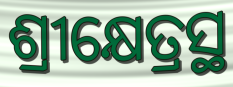
ଶ୍ରୀକ୍ଷେତ୍ରସ୍ଥ